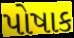
પોષાક